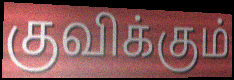
குவிக்கும்